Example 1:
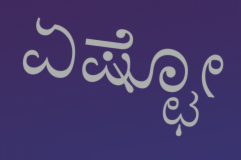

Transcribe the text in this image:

ಏಷ್ಟೋ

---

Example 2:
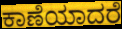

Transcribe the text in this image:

ಕಾಣೆಯಾದರೆ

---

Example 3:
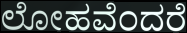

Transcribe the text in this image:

ಲೋಹವೆಂದರೆ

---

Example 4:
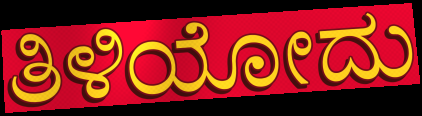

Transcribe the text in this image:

ತಿಳಿಯೋದು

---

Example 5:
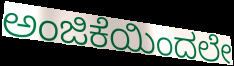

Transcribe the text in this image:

ಅಂಜಿಕೆಯಿಂದಲೇ